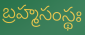
బ్రహ్మసంస్థః